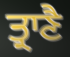
ਤ੍ਰਾਣੈ